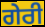
ਗੇਰੀ